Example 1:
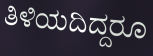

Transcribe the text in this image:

ತಿಳಿಯದಿದ್ದರೂ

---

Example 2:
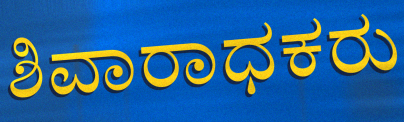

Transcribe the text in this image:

ಶಿವಾರಾಧಕರು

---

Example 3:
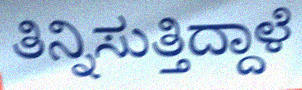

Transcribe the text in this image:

ತಿನ್ನಿಸುತ್ತಿದ್ದಾಳೆ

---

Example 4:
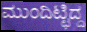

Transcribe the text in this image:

ಮುಂದಿಟ್ಟಿದ್ದ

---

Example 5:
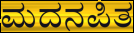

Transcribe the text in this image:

ಮದನಪಿತ